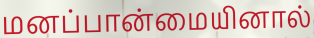
மனப்பான்மையினால்